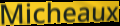
Micheaux